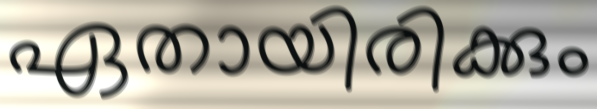
ഏതായിരിക്കും